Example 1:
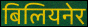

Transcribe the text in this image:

बिलियनेर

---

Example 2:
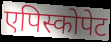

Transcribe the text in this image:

एपिस्कोपेट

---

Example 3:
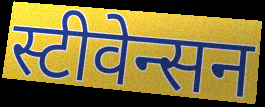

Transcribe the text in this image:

स्टीवेन्सन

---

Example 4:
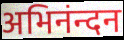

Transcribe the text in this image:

अभिनंन्दन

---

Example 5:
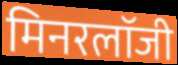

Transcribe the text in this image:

मिनरलॉजी